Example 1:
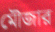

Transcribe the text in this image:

মৌজার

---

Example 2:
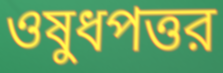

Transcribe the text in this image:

ওষুধপত্তর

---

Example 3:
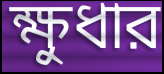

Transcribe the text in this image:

ক্ষুধার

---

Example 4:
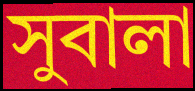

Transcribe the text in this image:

সুবালা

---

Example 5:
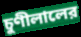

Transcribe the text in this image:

চুণীলালের